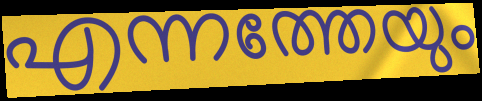
എന്നത്തേയും